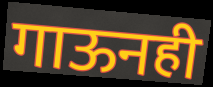
गाऊनही